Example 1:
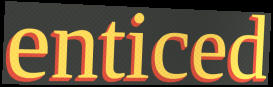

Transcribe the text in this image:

enticed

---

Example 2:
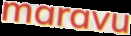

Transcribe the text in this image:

maravu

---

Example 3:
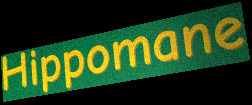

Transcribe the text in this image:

Hippomane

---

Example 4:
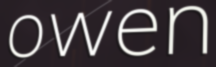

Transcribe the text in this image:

owen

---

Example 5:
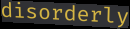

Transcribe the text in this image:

disorderly